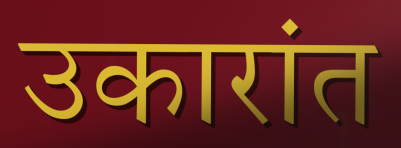
उकारांत